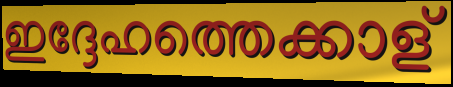
ഇദ്ദേഹത്തെക്കാള്